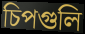
চিপগুলি